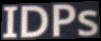
IDPs